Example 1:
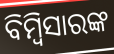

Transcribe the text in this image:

ବିମ୍ବିସାରଙ୍କ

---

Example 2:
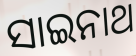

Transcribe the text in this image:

ସାଇନାଥ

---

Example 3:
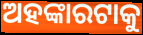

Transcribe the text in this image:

ଅହଙ୍କାରଟାକୁ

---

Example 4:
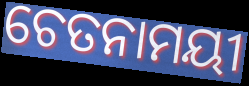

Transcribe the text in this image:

ଚେତନାମୟୀ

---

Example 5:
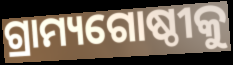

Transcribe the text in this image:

ଗ୍ରାମ୍ୟଗୋଷ୍ଠୀକୁ